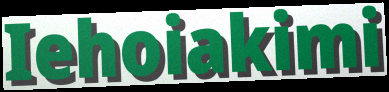
Iehoiakimi